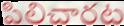
పిలిచారట